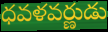
ధవళవర్ణుడు